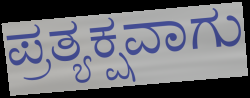
ಪ್ರತ್ಯಕ್ಷವಾಗು